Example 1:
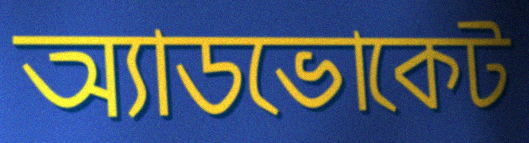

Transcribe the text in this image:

অ্যাডভোকেট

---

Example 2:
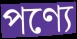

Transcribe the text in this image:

পণ্যে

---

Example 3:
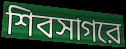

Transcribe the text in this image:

শিবসাগরে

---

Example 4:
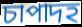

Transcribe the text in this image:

চাপাদহ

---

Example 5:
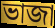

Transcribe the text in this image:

ভাজা